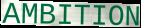
AMBITION